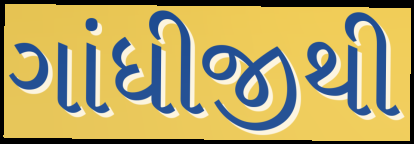
ગાંધીજીથી